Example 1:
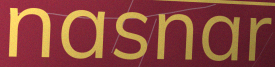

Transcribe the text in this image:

nasnar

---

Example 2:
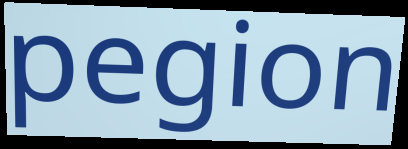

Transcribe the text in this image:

pegion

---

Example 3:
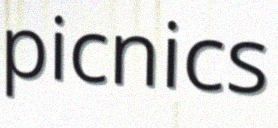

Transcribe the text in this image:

picnics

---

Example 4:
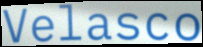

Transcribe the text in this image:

Velasco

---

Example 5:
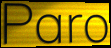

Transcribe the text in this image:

Paro